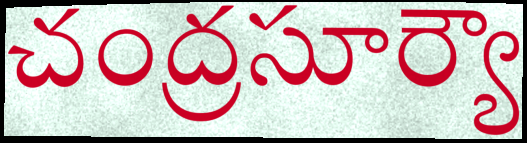
చంద్రసూర్యౌ